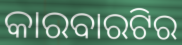
କାରବାରଟିର